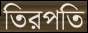
তিরপতি